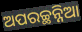
ଅପରଚ୍ଛନ୍ନିଆ